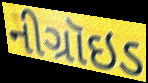
નીગ્રૉઇડ